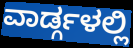
ವಾರ್ಡ್ಗಳಲ್ಲಿ